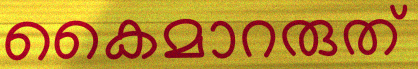
കൈമാറരുത്